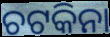
ଚଟକିନା